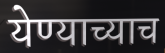
येण्याच्याच